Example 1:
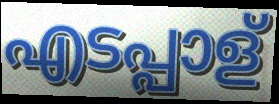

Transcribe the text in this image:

എടപ്പാള്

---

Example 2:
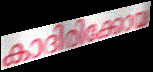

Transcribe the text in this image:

കാദിരിക്കോയ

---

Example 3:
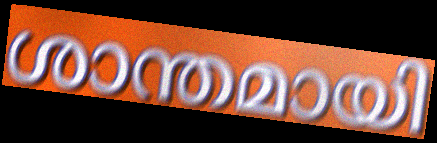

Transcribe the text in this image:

ശാന്തമായി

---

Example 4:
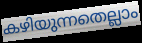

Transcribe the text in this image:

കഴിയുന്നതെല്ലാം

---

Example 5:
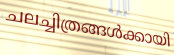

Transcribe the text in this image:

ചലച്ചിത്രങ്ങൾക്കായി